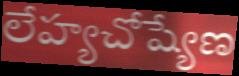
లేహ్యచోష్యేణ